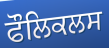
ਫੌਲਿਕਲਸ